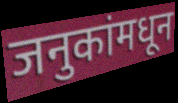
जनुकांमधून